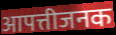
आपत्तीजनक